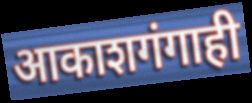
आकाशगंगाही